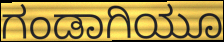
ಗಂಡಾಗಿಯೂ